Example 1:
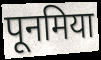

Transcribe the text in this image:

पूनमिया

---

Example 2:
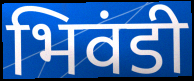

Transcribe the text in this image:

भिवंडी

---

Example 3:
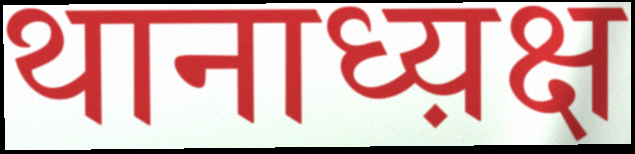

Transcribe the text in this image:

थानाध्य़क्ष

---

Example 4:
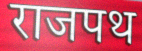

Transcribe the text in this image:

राजपथ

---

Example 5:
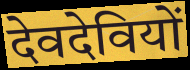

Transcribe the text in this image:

देवदेवियों